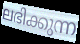
ലഭിക്കുന്ന